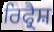
ਰਿਫ੍ਰੈਸ਼